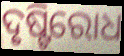
ଦୃଷ୍ଟିରୋଧ